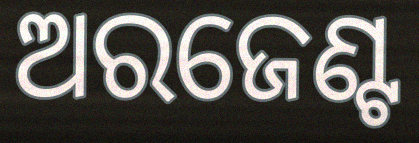
ଅରଜେଣ୍ଟ